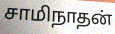
சாமிநாதன்